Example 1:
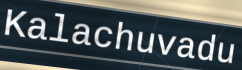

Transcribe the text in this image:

Kalachuvadu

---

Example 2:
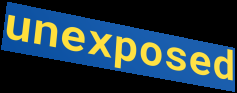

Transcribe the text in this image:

unexposed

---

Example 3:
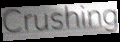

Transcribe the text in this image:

Crushing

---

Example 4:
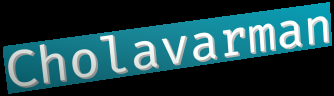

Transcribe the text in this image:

Cholavarman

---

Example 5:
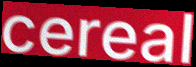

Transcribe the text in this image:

cereal